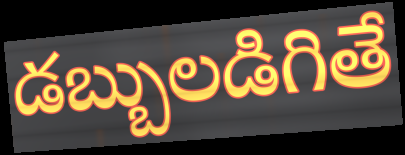
డబ్బులడిగితే